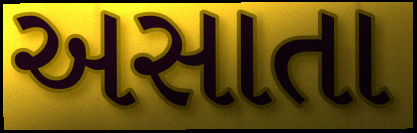
અસાતા